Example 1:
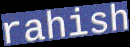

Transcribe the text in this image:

rahish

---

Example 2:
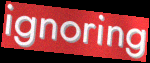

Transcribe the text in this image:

ignoring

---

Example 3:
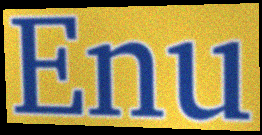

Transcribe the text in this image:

Enu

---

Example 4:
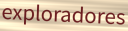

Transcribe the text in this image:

exploradores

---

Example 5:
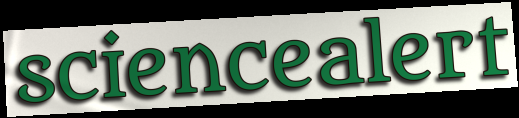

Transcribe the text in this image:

sciencealert